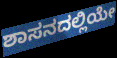
ಶಾಸನದಲ್ಲಿಯೇ